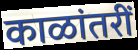
काळांतरीं